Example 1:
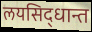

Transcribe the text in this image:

लयसिद्धान्त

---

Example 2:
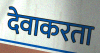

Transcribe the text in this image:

देवाकरता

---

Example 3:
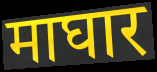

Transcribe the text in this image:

माघार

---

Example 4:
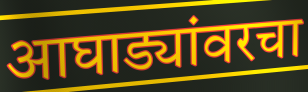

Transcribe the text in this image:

आघाड्यांवरचा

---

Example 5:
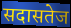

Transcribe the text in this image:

सदासतेज